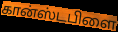
கான்ஸ்டபிளை